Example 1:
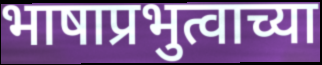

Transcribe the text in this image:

भाषाप्रभुत्वाच्या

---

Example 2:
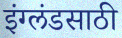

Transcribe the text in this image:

इंग्लंडसाठी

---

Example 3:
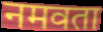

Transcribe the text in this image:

नमवता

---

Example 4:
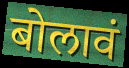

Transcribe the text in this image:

बोलावं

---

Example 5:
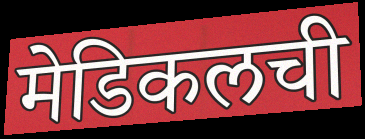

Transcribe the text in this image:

मेडिकलची